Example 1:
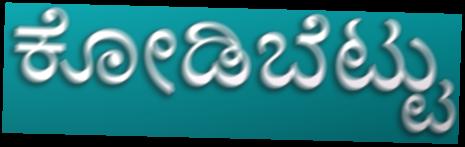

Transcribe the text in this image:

ಕೋಡಿಬೆಟ್ಟು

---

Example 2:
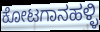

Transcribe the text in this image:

ಕೋಟಗಾನಹಳ್ಳಿ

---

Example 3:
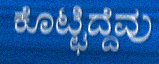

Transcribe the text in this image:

ಕೊಟ್ಟಿದ್ದೆವು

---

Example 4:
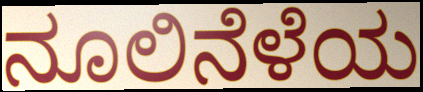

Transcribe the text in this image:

ನೂಲಿನೆಳೆಯ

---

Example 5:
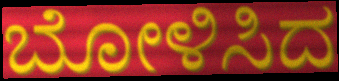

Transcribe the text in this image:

ಬೋಳಿಸಿದ